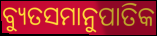
ବ୍ୟୁତସମାନୁପାତିକ